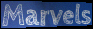
Marvels